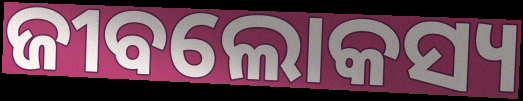
ଜୀବଲୋକସ୍ୟ